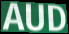
AUD